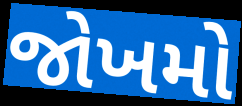
જોખમો